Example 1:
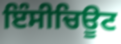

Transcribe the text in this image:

ਇੰਸੀਚਿਊਟ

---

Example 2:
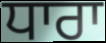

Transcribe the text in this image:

ਧਾਰਾ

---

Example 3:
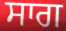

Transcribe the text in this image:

ਸਾਗ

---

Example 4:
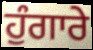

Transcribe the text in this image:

ਹੁੰਗਾਰੇ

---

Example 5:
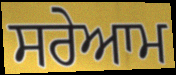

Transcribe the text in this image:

ਸਰੇਆਮ